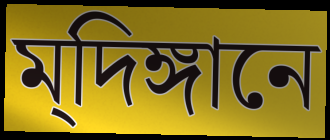
ম্‌দিঙ্গানে